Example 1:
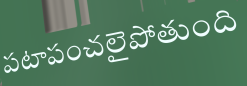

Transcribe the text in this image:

పటాపంచలైపోతుంది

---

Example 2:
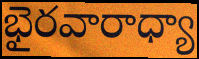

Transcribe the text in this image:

భైరవారాధ్యా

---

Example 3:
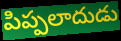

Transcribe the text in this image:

పిప్పలాదుడు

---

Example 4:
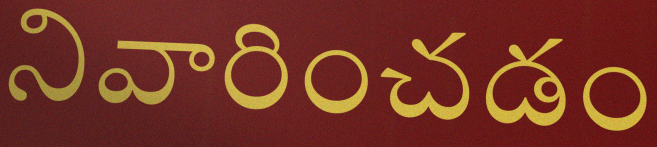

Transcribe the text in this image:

నివారించడం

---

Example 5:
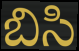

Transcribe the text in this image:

బిసి